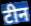
टीन